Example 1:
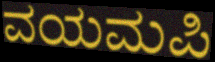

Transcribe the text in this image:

ವಯಮಪಿ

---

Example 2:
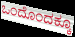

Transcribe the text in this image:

ಒಂದೊಂದಕ್ಕೂ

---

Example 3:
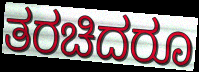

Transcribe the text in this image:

ತರಚಿದರೂ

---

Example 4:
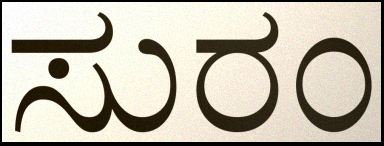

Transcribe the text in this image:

ಸುರಂ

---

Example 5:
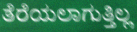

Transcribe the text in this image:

ತೆರೆಯಲಾಗುತ್ತಿಲ್ಲ